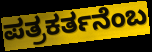
ಪತ್ರಕರ್ತನೆಂಬ